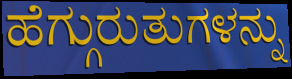
ಹೆಗ್ಗುರುತುಗಳನ್ನು